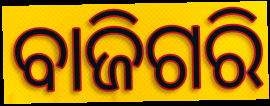
ବାଜିଗରି